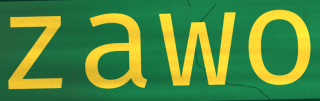
zawo